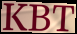
KBT